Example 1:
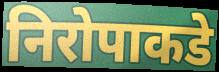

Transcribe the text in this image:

निरोपाकडे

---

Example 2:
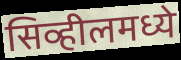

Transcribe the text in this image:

सिव्हीलमध्ये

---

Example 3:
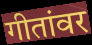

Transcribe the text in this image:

गीतांवर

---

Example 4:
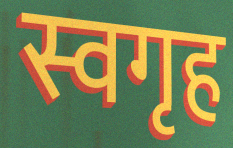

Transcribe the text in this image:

स्वगृह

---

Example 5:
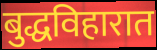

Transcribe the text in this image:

बुद्धविहारात